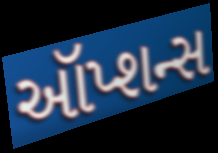
ઑપ્શન્સ